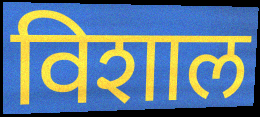
विशाल